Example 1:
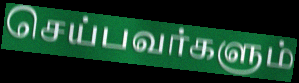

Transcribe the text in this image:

செய்பவர்களும்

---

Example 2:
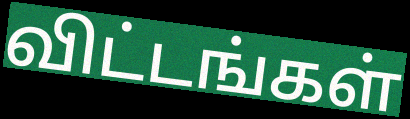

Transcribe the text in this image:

விட்டங்கள்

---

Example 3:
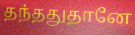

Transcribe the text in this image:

தந்ததுதானே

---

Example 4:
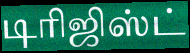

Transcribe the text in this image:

டிரிஜிஸ்ட்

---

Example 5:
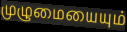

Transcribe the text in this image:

முழுமையையும்